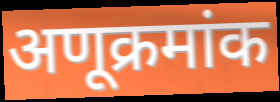
अणूक्रमांक